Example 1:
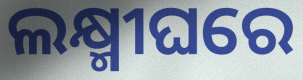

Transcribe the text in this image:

ଲକ୍ଷ୍ମୀଘରେ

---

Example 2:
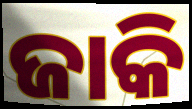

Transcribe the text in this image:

ଜାକି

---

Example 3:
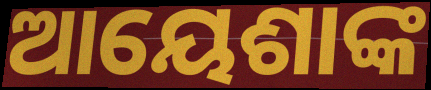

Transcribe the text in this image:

ଆୟେଶାଙ୍କ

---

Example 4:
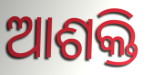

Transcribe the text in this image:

ଆଶକ୍ତି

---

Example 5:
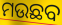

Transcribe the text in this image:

ମଉଛବ